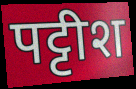
पट्टीश